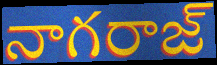
నాగరాజ్